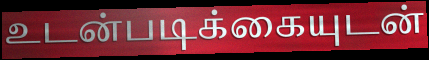
உடன்படிக்கையுடன்